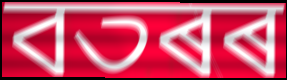
বতৰৰ